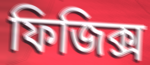
ফিজিক্স